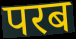
परब